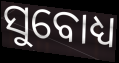
ସୁବୋଧ୍ୟ